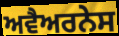
ਅਵੈਅਰਨੇਸ